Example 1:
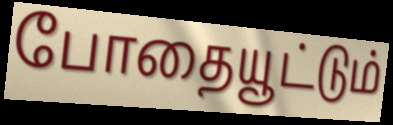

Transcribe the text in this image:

போதையூட்டும்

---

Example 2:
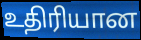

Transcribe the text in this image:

உதிரியான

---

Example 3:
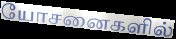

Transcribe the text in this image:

யோசனைகளில்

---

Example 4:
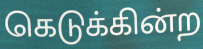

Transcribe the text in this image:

கெடுக்கின்ற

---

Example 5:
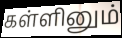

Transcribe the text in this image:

கள்ளினும்